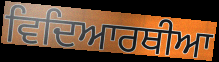
ਵਿਦਿਆਰਥੀਆ